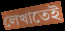
লেখাতেই